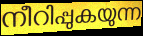
നീറിപ്പുകയുന്ന